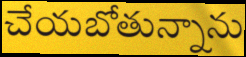
చేయబోతున్నాను